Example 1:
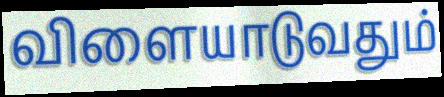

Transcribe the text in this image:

விளையாடுவதும்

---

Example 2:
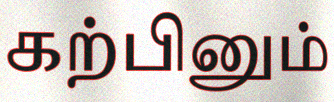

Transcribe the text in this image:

கற்பினும்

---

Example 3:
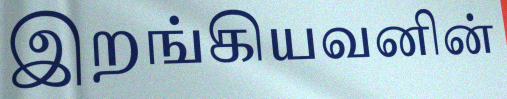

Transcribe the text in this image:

இறங்கியவனின்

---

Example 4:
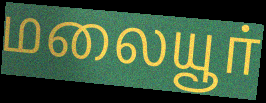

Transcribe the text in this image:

மலையூர்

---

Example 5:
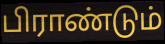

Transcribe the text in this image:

பிராண்டும்